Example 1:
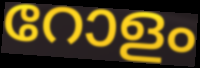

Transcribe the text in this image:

റോളം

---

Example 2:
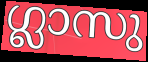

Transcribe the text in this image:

ഗ്ലാസു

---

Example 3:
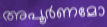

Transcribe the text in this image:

അപൂർണമോ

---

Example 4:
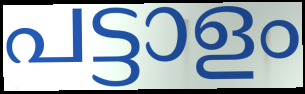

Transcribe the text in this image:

പട്ടാളം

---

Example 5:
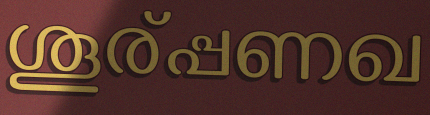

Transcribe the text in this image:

ശൂര്പ്പണഖ